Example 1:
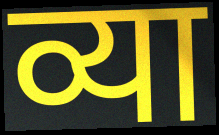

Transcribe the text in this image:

व्या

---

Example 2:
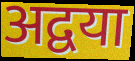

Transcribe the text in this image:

अद्वया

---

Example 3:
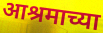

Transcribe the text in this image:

आश्रमाच्या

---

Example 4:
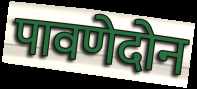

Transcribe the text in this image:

पावणेदोन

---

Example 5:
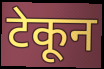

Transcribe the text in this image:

टेकून